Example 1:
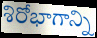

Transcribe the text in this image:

శిరోభాగాన్ని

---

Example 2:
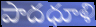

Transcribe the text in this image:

పాదధూళి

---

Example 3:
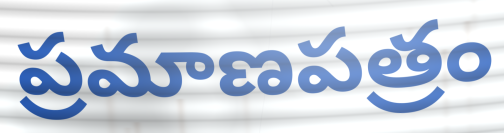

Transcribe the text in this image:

ప్రమాణపత్రం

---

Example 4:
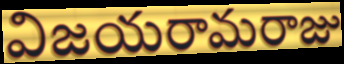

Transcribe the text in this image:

విజయరామరాజు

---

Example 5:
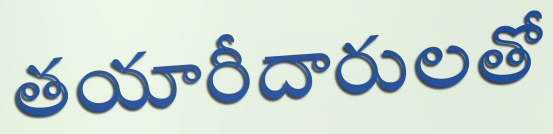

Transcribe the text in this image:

తయారీదారులతో